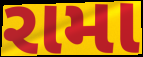
રામા